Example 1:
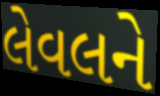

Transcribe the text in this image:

લેવલને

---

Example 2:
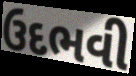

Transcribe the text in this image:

ઉદભવી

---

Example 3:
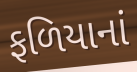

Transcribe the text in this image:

ફળિયાનાં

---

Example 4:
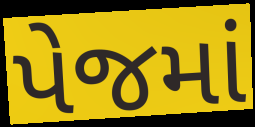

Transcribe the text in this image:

પેજમાં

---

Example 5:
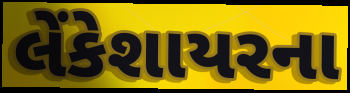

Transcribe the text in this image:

લેંકેશાયરના